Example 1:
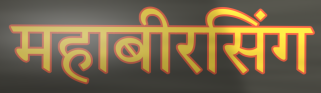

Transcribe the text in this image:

महाबीरसिंग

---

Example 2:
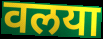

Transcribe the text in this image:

वलया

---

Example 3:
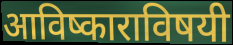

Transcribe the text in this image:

आविष्काराविषयी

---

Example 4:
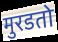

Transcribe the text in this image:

मुरडतो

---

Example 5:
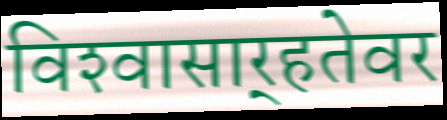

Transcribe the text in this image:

विश्वासार्हतेवर